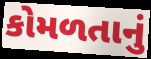
કોમળતાનું